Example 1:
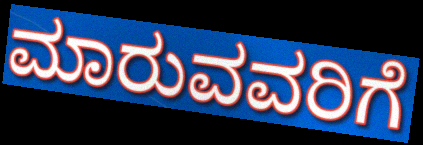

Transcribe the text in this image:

ಮಾರುವವರಿಗೆ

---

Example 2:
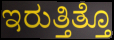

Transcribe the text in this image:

ಇರುತ್ತಿತ್ತೊ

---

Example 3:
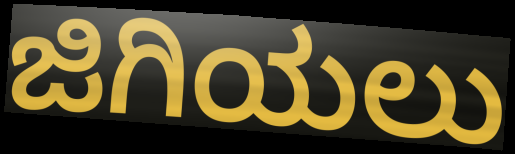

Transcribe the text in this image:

ಜಿಗಿಯಲು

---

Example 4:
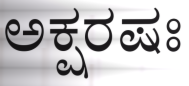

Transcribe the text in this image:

ಅಕ್ಷರಷಃ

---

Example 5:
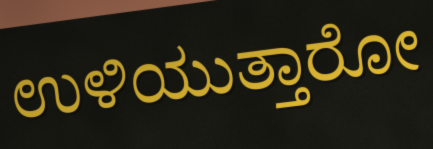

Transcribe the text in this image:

ಉಳಿಯುತ್ತಾರೋ